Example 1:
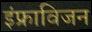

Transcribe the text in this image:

इंफ्राविजन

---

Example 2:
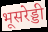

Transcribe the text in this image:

भूसरेड्डी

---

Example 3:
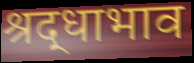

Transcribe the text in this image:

श्रद्धाभाव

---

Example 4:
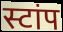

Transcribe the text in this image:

स्टांप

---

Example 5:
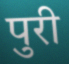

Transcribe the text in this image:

पुरी